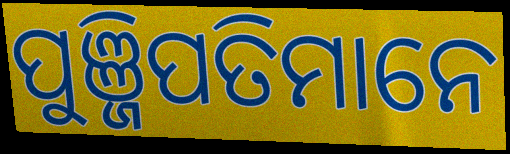
ପୁଞ୍ଜିପତିମାନେ